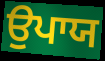
ਉਪਾਯ